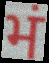
भं